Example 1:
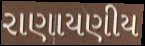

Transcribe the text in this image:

રાણાયણીય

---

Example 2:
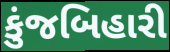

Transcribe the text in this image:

કુંજબિહારી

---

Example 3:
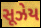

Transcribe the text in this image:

સૂઝેય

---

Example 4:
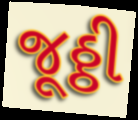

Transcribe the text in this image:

જૂઠ્ઠી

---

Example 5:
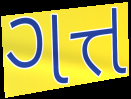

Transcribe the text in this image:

ગત્ત